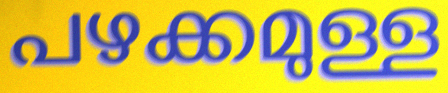
പഴക്കമുള്ള